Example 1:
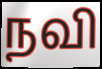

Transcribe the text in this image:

நவி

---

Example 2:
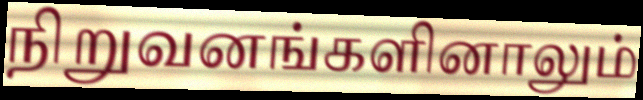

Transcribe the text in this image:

நிறுவனங்களினாலும்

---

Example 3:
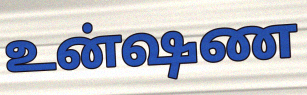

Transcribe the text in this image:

உன்ஷண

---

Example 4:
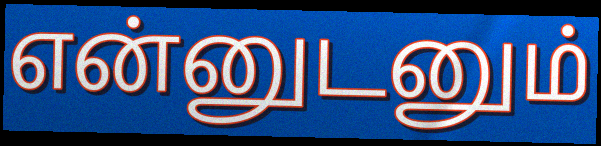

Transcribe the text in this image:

என்னுடனும்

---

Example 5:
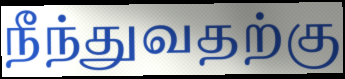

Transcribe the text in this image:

நீந்துவதற்கு